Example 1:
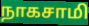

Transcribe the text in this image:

நாகசாமி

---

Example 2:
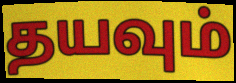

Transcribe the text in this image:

தயவும்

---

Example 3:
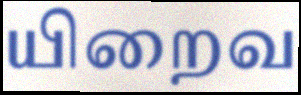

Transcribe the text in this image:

யிறைவ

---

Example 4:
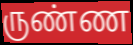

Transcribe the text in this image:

ருண்ண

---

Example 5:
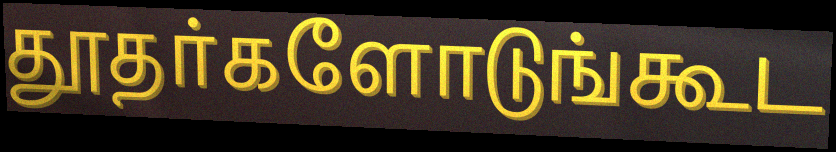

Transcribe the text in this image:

தூதர்களோடுங்கூட